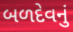
બળદેવનું